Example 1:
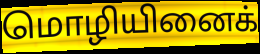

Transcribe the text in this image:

மொழியினைக்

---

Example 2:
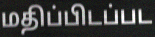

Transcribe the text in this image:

மதிப்பிடப்பட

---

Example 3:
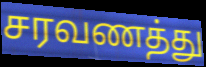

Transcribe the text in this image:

சரவணத்து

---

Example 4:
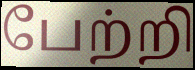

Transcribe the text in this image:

பேற்றி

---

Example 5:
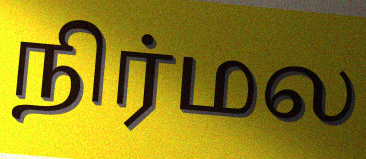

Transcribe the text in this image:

நிர்மல